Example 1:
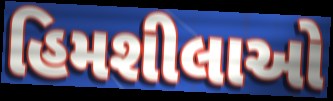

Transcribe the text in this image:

હિમશીલાઓ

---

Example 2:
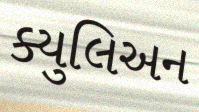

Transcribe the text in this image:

ક્યુલિઅન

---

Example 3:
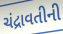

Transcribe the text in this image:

ચંદ્રાવતીની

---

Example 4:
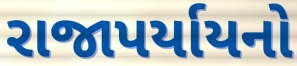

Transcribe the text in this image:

રાજાપર્યાયનો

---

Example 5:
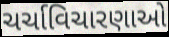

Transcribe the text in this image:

ચર્ચાવિચારણાઓ